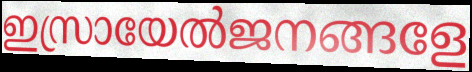
ഇസ്രായേൽജനങ്ങളേ